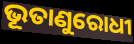
ଭୂତାଣୁରୋଧୀ